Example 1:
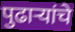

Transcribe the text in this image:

पुढाऱ्यांचे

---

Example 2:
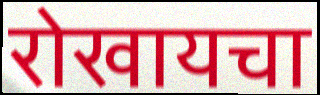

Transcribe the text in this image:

रोखायचा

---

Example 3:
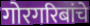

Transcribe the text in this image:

गोरगरिबांचे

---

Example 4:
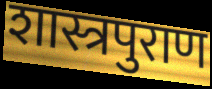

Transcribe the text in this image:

शास्त्रपुराण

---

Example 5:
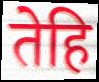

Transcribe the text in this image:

तेहि